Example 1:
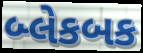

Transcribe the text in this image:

બ્લેકબક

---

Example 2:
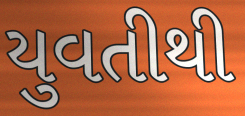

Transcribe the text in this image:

યુવતીથી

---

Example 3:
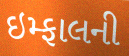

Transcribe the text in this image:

ઇમ્ફાલની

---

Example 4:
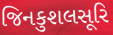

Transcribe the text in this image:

જિનકુશલસૂરિ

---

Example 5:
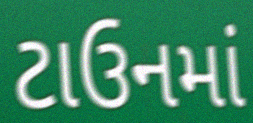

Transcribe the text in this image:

ટાઉનમાં